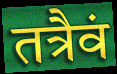
तत्रैवं